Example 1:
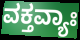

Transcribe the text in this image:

ವಕ್ತವ್ಯಾಃ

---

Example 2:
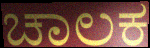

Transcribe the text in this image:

ಚಾಲಕ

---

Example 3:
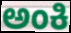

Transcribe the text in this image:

ಅಂಕಿ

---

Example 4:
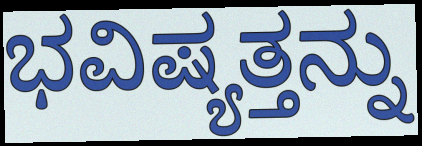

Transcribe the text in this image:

ಭವಿಷ್ಯತ್ತನ್ನು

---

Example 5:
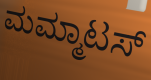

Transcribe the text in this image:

ಮಮ್ಮಾಟಸ್